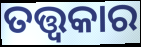
ତତ୍ତ୍ୱକାର